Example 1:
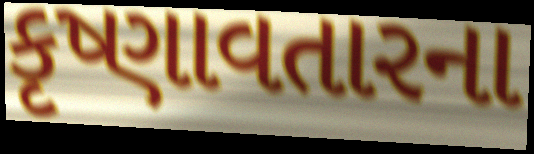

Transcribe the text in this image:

કૃષ્ણાવતારના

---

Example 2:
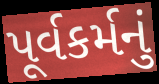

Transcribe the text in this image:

પૂર્વકર્મનું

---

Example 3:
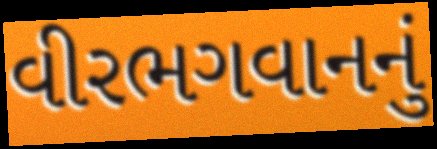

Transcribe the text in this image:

વીરભગવાનનું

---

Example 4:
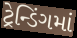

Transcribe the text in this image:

ટ્રેન્ડિંગમાં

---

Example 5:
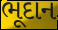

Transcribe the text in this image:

ભૂદાન